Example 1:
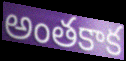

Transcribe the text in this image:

అంతకాక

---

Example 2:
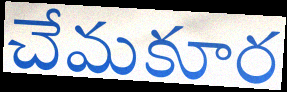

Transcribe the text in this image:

చేమకూర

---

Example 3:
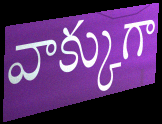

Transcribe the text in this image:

వాక్కుగా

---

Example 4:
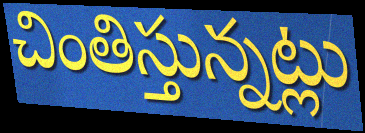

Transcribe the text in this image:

చింతిస్తున్నట్లు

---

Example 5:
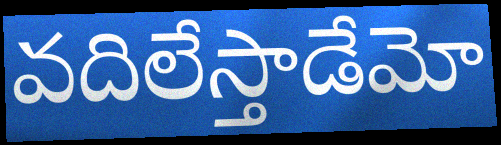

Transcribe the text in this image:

వదిలేస్తాడేమో